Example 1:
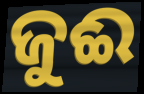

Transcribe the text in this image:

ଜୁଈ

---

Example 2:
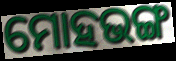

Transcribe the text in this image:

ମୋହଭଙ୍ଗ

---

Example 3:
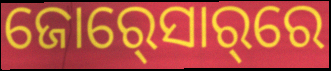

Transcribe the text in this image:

ଜୋର୍‍ସୋର୍‌ରେ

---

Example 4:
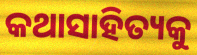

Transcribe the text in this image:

କଥାସାହିତ୍ୟକୁ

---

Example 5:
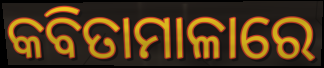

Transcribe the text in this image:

କବିତାମାଳାରେ